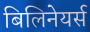
बिलिनेयर्स